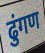
ढुंगण